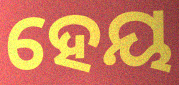
ହେୟ